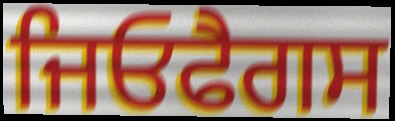
ਜਿਓਫੈਗਸ